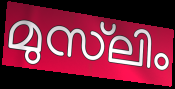
മുസ്‌ലിം